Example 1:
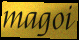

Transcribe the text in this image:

magoi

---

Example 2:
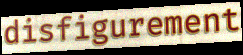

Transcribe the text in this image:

disfigurement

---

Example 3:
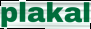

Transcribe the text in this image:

plakal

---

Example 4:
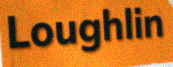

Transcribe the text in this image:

Loughlin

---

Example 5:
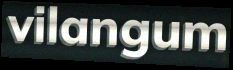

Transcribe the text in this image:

vilangum